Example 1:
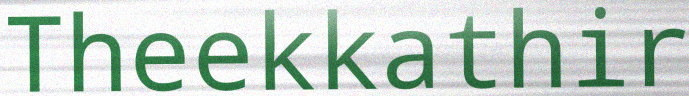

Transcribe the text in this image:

Theekkathir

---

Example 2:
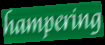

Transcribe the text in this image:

hampering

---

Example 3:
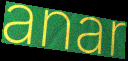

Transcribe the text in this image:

anar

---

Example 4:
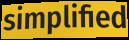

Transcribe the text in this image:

simplified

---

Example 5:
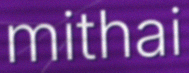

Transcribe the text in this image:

mithai